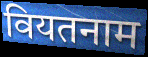
वियतनाम